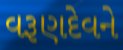
વરૂણદેવને